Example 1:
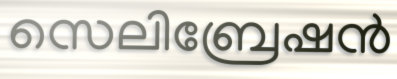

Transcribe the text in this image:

സെലിബ്രേഷൻ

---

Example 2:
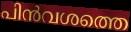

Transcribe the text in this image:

പിൻവശത്തെ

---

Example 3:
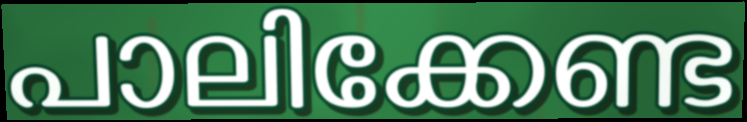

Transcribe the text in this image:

പാലിക്കേണ്ട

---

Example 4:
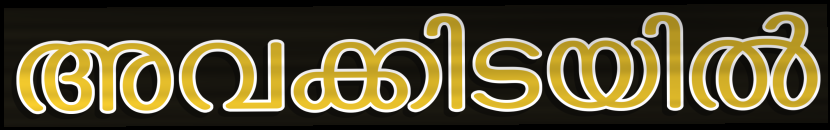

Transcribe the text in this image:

അവക്കിടയിൽ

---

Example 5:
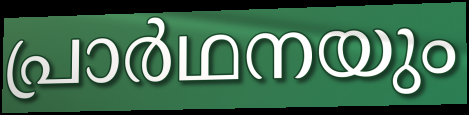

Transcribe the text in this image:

പ്രാർഥനയും